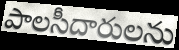
పాలసీదారులను